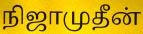
நிஜாமுதீன்